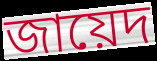
জায়েদ